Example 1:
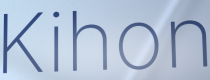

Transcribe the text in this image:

Kihon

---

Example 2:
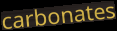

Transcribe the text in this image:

carbonates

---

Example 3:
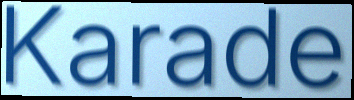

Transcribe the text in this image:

Karade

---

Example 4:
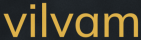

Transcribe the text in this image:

vilvam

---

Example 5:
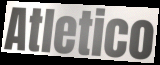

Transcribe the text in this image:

Atletico